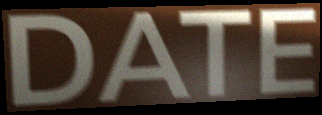
DATE